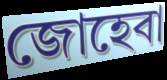
জোহেবা